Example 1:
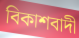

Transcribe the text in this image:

বিকাশবাদী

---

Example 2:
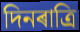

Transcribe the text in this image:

দিনৰাত্ৰি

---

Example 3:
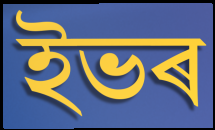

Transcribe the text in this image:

ইভৰ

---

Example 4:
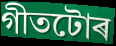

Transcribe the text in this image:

গীতটোৰ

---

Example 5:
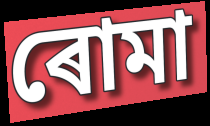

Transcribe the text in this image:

ৰোমা